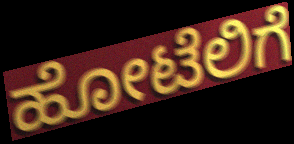
ಹೋಟೆಲಿಗೆ